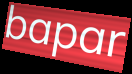
bapar